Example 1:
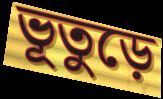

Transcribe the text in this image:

ভূতুড়ে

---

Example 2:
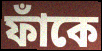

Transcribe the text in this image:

ফাঁকে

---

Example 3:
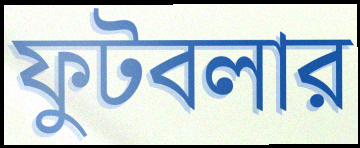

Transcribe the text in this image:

ফুটবলার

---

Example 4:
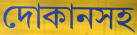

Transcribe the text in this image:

দোকানসহ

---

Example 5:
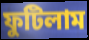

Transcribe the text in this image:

ফুটিলাম